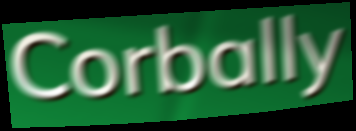
Corbally